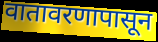
वातावरणापासून